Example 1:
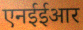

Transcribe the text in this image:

एनईईआर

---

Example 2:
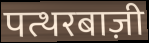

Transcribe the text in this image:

पत्थरबाज़ी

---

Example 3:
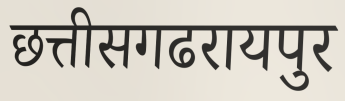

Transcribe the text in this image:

छत्तीसगढरायपुर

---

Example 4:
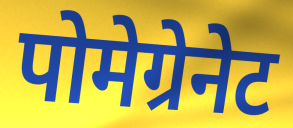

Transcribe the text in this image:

पोमेग्रेनेट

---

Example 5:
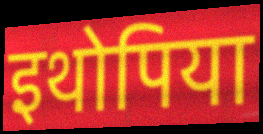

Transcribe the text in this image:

इथोपिया